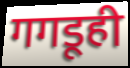
गगडूही